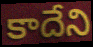
కాదేని